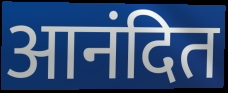
आनंदित